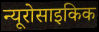
न्यूरोसाइकिक